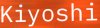
Kiyoshi